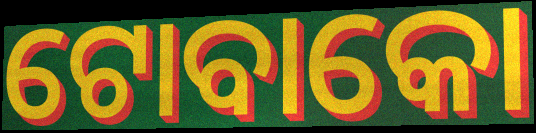
ଟୋବାକୋ